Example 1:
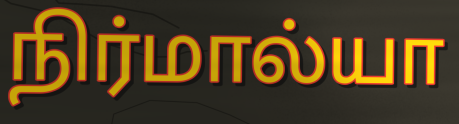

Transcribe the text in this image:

நிர்மால்யா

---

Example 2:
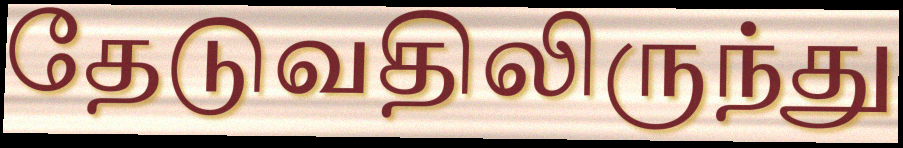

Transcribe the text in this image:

தேடுவதிலிருந்து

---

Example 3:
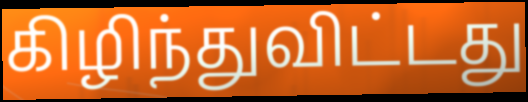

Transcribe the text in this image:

கிழிந்துவிட்டது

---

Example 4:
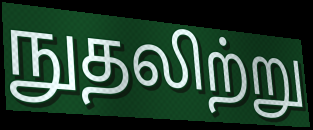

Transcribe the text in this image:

நுதலிற்று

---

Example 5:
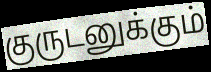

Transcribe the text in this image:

குருடனுக்கும்